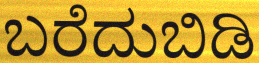
ಬರೆದುಬಿಡಿ